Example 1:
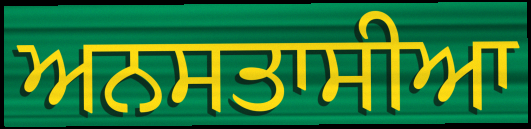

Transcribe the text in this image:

ਅਨਸਤਾਸੀਆ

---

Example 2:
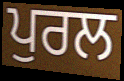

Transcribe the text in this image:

ਪੁਰਲ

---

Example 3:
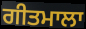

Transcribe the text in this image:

ਗੀਤਮਾਲਾ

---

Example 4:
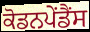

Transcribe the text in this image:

ਕੋਡਨਪੇਂਡੈਂਸ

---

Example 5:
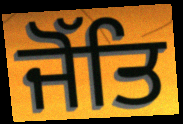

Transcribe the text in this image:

ਜੋੱਤਿ